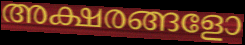
അക്ഷരങ്ങളോ